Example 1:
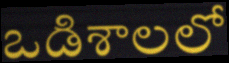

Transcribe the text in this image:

ఒడిశాలలో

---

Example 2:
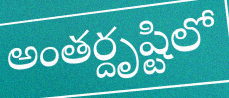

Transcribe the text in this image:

అంతర్దృష్టిలో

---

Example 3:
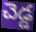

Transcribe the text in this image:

చెడ్డ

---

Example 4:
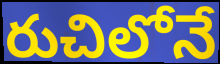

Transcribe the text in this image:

రుచిలోనే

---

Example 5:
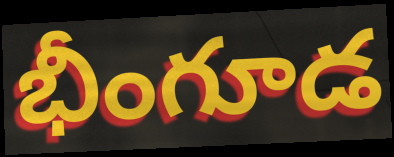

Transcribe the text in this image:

భీంగూడ